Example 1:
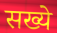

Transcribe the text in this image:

सख्ये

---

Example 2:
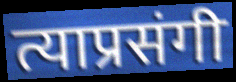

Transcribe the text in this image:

त्याप्रसंगी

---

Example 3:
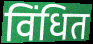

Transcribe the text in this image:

विंधित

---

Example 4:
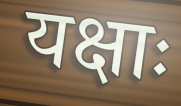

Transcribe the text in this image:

यक्षाः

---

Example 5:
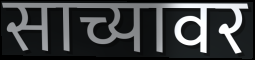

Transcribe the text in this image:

साच्यावर